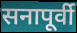
सनापूर्वी